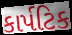
કાર્પટિક